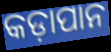
କଡ଼ାପାନ